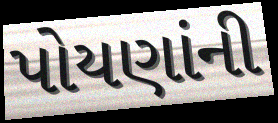
પોયણાંની